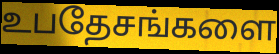
உபதேசங்களை